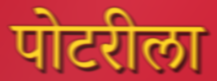
पोटरीला